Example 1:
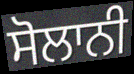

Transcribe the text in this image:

ਸੋਲਾਨੀ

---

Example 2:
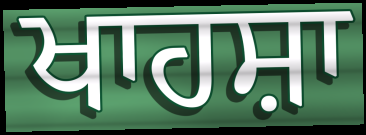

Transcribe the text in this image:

ਖਾਹਸ਼ਾ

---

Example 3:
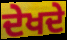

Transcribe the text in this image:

ਦੇਖਦੇ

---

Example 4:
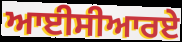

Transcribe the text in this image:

ਆਈਸੀਆਰਏ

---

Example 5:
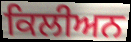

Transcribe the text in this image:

ਕਿਲੀਅਨ